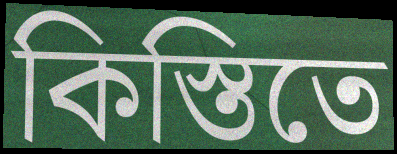
কিস্তিতে